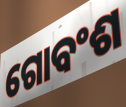
ଗୋବଂଶ